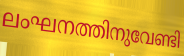
ലംഘനത്തിനുവേണ്ടി